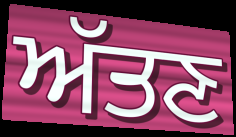
ਅੱਤਣ